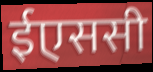
ईएससी